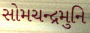
સોમચન્દ્રમુનિ